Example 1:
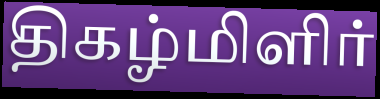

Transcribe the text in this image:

திகழ்மிளிர்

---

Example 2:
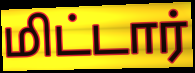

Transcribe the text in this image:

மிட்டார்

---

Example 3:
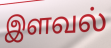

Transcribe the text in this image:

இளவல்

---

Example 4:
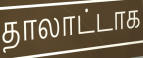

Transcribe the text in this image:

தாலாட்டாக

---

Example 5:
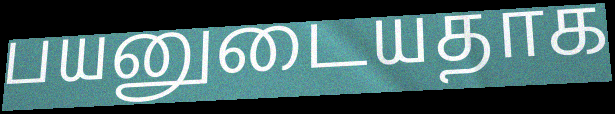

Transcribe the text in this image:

பயனுடையதாக